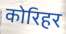
कोरिहर